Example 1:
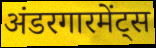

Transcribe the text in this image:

अंडरगारमेंट्स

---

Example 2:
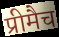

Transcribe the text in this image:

प्रीमैच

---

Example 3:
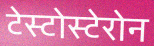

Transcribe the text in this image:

टेस्टोस्टेरोन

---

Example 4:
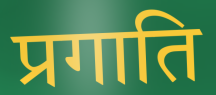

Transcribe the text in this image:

प्रगाति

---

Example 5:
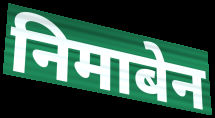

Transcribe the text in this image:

निमाबेन